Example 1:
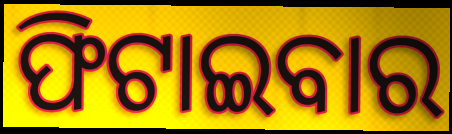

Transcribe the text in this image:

ଫିଟାଇବାର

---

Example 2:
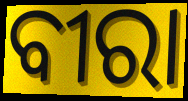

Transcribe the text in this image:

ବୀରା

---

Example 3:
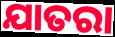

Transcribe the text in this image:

ଯାତରା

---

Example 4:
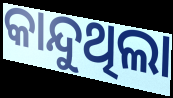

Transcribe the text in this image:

କାନ୍ଦୁଥିଲା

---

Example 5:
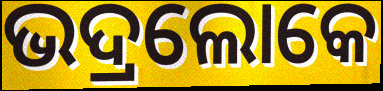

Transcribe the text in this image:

ଭଦ୍ରଲୋକେ